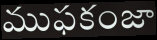
ముఫకంజా